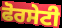
ਫੋਰਸੇਟੀ